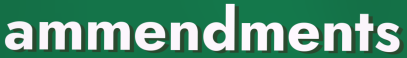
ammendments